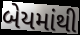
બેયમાંથી